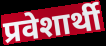
प्रवेशार्थी